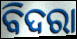
ବିଦରା